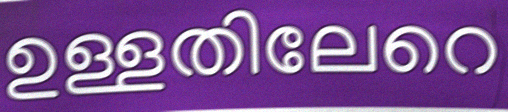
ഉള്ളതിലേറെ